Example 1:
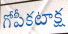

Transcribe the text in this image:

గోపీకటాక్ష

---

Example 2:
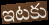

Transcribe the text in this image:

ఇటకు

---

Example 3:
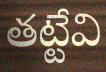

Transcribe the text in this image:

తట్టేవి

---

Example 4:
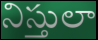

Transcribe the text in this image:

నిస్తులా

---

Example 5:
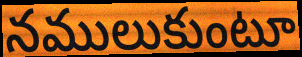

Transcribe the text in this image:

నములుకుంటూ